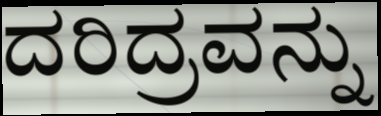
ದರಿದ್ರವನ್ನು